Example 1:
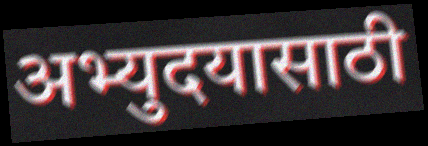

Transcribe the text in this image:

अभ्युदयासाठी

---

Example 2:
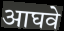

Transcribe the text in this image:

आघवे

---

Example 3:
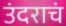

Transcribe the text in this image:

उंदराचं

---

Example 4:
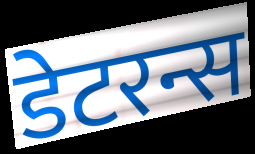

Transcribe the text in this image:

डेटरन्स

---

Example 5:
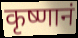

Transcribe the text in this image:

कृष्णानं